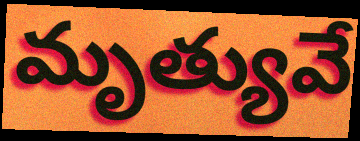
మృత్యువే